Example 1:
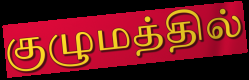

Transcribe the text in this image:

குழுமத்தில்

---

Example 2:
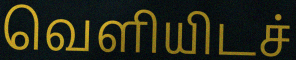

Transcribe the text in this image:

வெளியிடச்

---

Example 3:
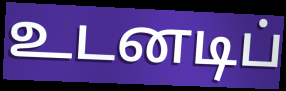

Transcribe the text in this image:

உடனடிப்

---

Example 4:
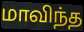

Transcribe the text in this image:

மாவிந்த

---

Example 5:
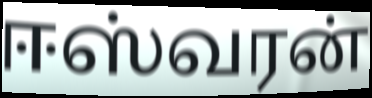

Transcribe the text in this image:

ஈஸ்வரன்